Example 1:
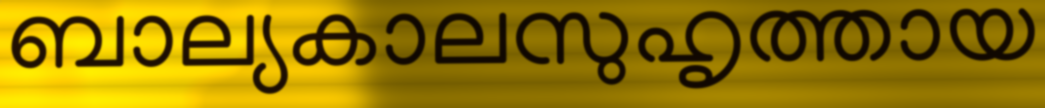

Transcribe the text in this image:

ബാല്യകാലസുഹൃത്തായ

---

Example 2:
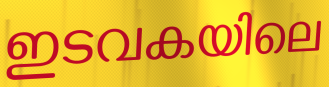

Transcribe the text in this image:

ഇടവകയിലെ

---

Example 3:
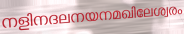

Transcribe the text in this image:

നളിനദലനയനമഖിലേശ്വരം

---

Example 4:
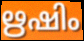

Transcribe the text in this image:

ഋഷിം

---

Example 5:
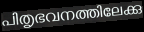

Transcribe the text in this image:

പിതൃഭവനത്തിലേക്കു